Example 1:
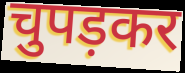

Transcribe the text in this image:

चुपड़कर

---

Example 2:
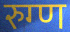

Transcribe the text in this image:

रुग्ण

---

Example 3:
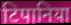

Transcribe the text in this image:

टिपानिया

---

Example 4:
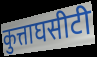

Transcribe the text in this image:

कुत्ताघसीटी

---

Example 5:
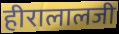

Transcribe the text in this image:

हीरालालजी